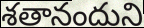
శతానందుని